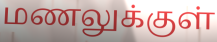
மணலுக்குள்